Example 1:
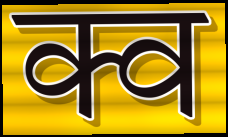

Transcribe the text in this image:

क्व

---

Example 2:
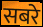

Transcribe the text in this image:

सबरे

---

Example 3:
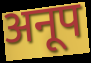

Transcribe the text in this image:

अनूप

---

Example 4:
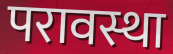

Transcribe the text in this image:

परावस्था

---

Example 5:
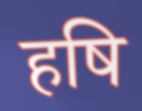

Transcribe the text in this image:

हषि